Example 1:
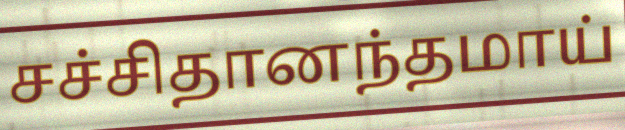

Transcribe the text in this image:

சச்சிதானந்தமாய்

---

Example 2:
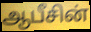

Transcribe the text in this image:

ஆபீசின்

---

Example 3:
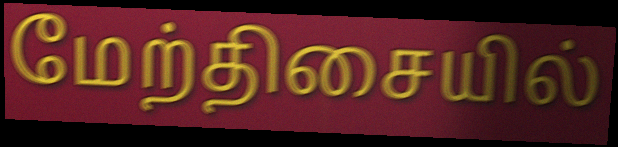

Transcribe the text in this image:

மேற்திசையில்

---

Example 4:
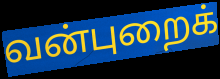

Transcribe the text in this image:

வன்புறைக்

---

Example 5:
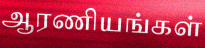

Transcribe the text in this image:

ஆரணியங்கள்